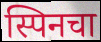
स्पिनचा